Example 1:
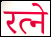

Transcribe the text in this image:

रत्ने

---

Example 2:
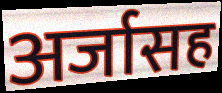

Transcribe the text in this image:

अर्जासह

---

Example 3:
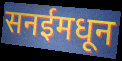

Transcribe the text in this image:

सनईमधून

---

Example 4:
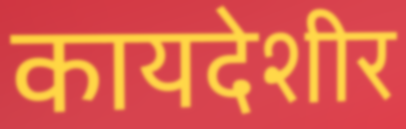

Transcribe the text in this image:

कायदेशीर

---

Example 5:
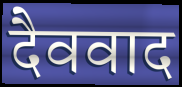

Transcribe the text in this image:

दैववाद